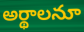
అర్థాలనూ